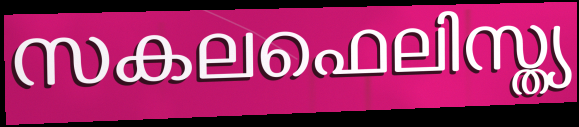
സകലഫെലിസ്ത്യ